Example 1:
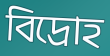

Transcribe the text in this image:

বিদ্রোহ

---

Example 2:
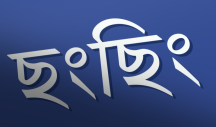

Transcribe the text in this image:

ছংছিং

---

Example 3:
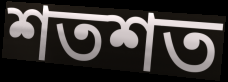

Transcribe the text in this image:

শতশত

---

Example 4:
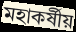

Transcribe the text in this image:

মহাকর্ষীয়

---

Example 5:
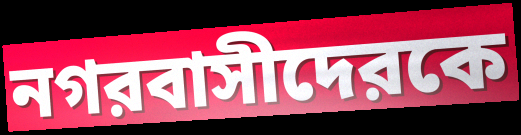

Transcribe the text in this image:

নগরবাসীদেরকে